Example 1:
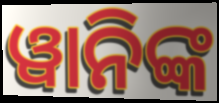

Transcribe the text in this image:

ୱାନିଙ୍କ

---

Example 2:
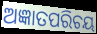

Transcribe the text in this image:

ଅଜ୍ଞାତପରିଚୟ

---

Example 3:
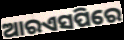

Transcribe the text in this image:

ଆରଏସପିରେ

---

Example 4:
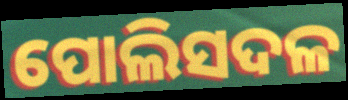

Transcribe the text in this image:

ପୋଲିସଦଳ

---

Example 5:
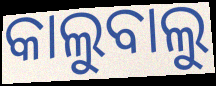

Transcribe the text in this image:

କାଲୁବାଲୁ